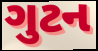
ગુટન